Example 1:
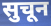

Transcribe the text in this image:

सुचून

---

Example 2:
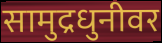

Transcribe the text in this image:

सामुद्रधुनीवर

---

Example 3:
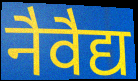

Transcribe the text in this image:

नैवैद्य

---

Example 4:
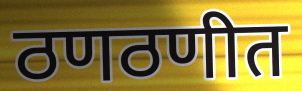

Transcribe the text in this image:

ठणठणीत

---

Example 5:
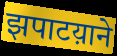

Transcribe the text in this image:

झपाटय़ाने